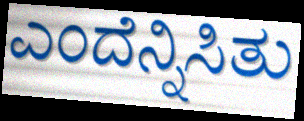
ಎಂದೆನ್ನಿಸಿತು